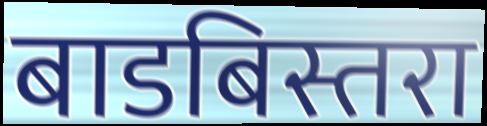
बाडबिस्तरा